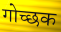
गोच्छक